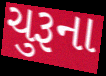
ચુરૂના